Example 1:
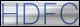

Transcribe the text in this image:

HDFC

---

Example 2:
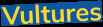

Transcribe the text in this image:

Vultures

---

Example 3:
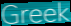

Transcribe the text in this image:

Greek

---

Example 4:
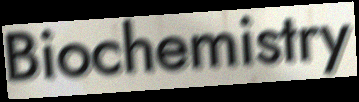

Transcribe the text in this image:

Biochemistry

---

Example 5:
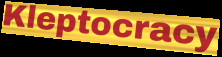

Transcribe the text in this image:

Kleptocracy